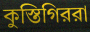
কুস্তিগিররা